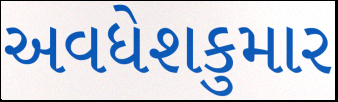
અવધેશકુમાર